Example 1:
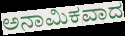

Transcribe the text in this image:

ಅನಾಮಿಕವಾದ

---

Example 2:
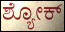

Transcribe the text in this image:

ಶ್ಯೋಕ್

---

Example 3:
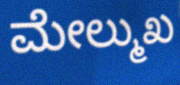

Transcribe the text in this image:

ಮೇಲ್ಮುಖ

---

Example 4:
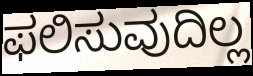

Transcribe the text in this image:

ಫಲಿಸುವುದಿಲ್ಲ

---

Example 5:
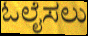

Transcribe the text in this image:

ಓಲೈಸಲು